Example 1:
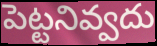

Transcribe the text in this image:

పెట్టనివ్వదు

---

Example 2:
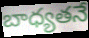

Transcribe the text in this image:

బాధ్యతనే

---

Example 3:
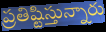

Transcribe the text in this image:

ప్రతిష్టిస్తున్నారు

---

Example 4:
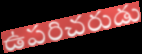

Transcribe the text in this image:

ఉపరిచరుడు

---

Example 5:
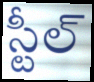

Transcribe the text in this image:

స్టీల్